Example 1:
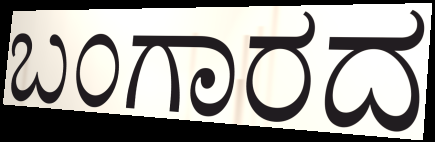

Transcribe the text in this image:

ಬಂಗಾರದ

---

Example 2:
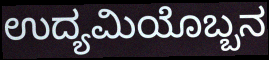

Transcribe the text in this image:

ಉದ್ಯಮಿಯೊಬ್ಬನ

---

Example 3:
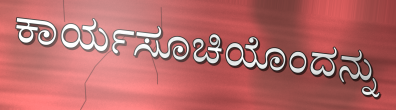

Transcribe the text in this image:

ಕಾರ್ಯಸೂಚಿಯೊಂದನ್ನು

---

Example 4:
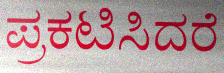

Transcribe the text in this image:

ಪ್ರಕಟಿಸಿದರೆ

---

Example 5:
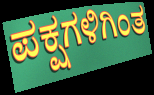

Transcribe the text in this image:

ಪಕ್ಷಗಳಿಗಿಂತ